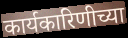
कार्यकारिणीच्या